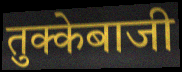
तुक्केबाजी